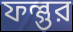
ফল্গুর